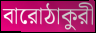
বারোঠাকুরী